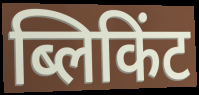
ब्लिकिंट